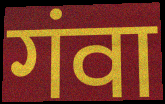
गंवा